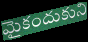
మైకందుకుని